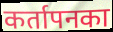
कर्तापनका